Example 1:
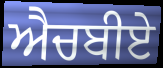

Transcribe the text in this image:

ਐਚਬੀਏ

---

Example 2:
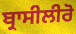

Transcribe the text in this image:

ਬ੍ਰਾਸੀਲੀਰੋ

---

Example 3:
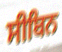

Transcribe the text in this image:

ਸੀਬਿਨ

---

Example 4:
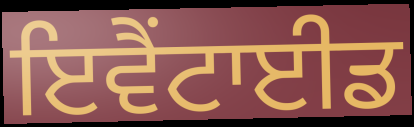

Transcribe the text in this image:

ਇਵੈਂਟਾਈਡ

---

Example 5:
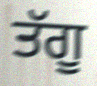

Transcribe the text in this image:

ਤੱਗੂ